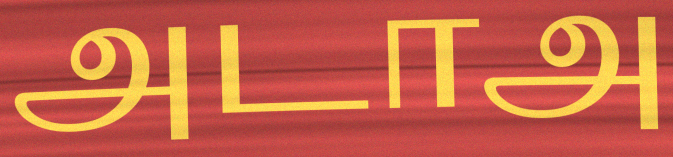
அடாஅ